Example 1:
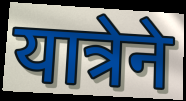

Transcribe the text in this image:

यात्रेने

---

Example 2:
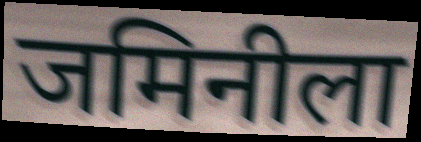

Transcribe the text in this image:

जमिनीला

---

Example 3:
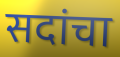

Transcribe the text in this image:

सदांचा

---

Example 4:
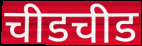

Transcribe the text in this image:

चीडचीड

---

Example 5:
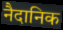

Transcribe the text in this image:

नैदानिक